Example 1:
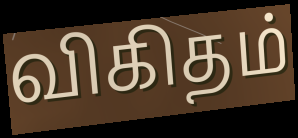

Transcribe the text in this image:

விகிதம்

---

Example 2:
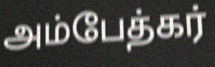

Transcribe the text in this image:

அம்பேத்கர்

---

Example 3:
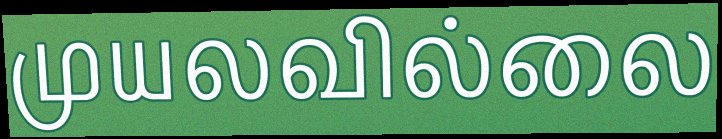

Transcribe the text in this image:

முயலவில்லை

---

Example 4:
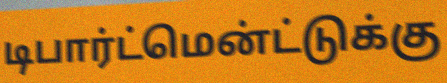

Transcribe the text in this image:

டிபார்ட்மென்ட்டுக்கு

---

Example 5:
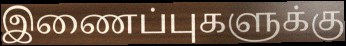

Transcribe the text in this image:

இணைப்புகளுக்கு